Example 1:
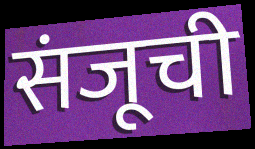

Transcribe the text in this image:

संजूची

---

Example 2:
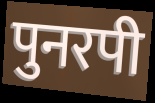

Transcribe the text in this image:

पुनरपी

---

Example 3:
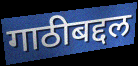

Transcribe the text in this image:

गाठीबद्दल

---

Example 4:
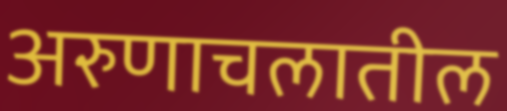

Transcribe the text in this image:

अरुणाचलातील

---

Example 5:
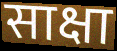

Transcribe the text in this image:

साक्षा